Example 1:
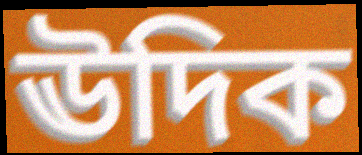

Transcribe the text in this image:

ঊদিক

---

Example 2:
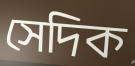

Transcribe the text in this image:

সেদিক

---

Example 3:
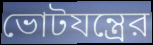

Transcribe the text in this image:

ভোটযন্ত্রের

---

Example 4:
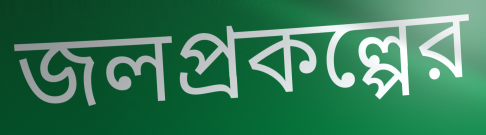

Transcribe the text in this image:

জলপ্রকল্পের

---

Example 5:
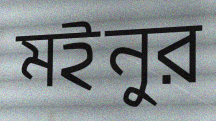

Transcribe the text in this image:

মইনুর